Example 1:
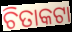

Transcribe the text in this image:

ଚିତାକଟା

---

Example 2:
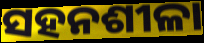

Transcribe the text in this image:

ସହନଶୀଳା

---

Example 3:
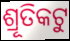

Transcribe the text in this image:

ଶ୍ରୂତିକଟୁ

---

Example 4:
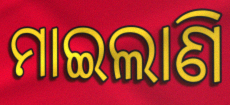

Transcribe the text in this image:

ମାଇଲାଣି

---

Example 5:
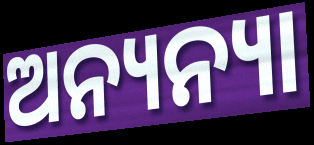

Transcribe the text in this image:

ଅନ୍ୟନ୍ୟା